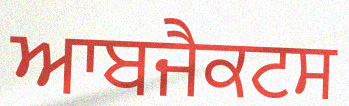
ਆਬਜੈਕਟਸ